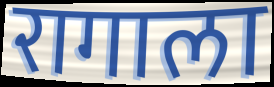
रागाला